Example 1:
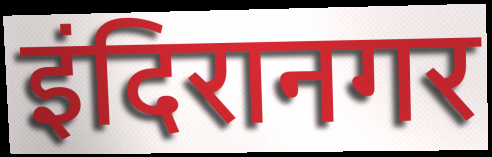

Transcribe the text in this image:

इंदिरानगर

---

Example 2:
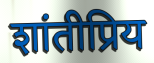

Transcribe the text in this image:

शांतीप्रिय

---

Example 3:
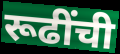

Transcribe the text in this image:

रूढींची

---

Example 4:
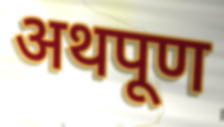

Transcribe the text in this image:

अथपूण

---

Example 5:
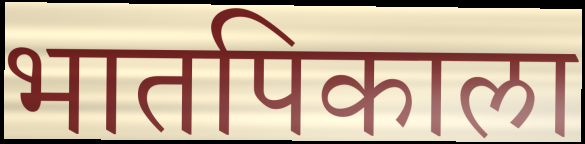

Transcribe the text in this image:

भातपिकाला